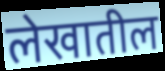
लेखातील